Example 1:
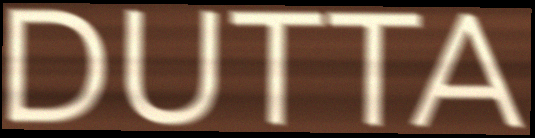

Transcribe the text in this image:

DUTTA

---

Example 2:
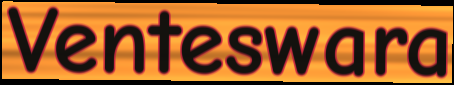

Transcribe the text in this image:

Venteswara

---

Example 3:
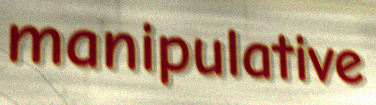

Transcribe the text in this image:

manipulative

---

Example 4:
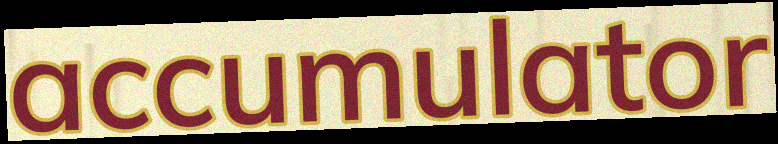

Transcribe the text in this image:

accumulator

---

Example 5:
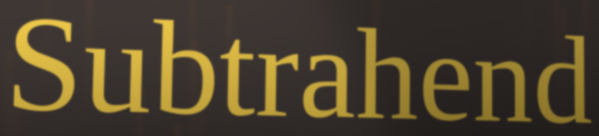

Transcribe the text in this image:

Subtrahend